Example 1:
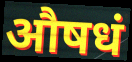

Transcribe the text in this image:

औषधं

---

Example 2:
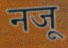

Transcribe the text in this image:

नजू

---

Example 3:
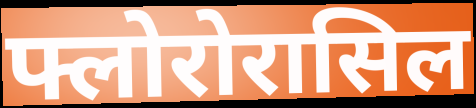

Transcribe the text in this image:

फ्लोरोरासिल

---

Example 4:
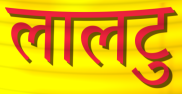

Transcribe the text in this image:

लालटु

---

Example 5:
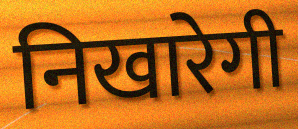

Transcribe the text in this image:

निखारेगी